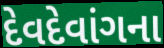
દેવદેવાંગના